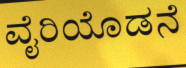
ವೈರಿಯೊಡನೆ